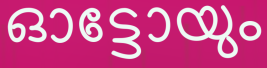
ഓട്ടോയും